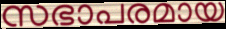
സഭാപരമായ